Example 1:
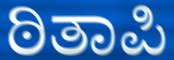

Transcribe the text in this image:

ಠಿತಾಪಿ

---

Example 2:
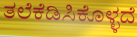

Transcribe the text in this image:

ತಲೆಕೆಡಿಸಿಕೊಳ್ಳದೆ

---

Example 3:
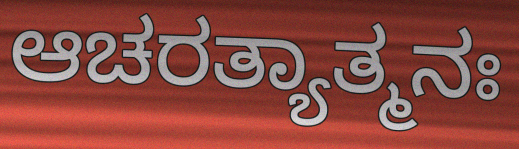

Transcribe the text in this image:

ಆಚರತ್ಯಾತ್ಮನಃ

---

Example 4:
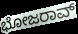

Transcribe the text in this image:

ಭೋಜರಾವ್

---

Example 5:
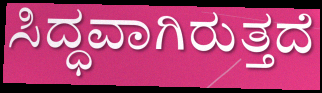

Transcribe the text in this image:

ಸಿದ್ಧವಾಗಿರುತ್ತದೆ